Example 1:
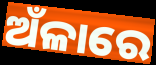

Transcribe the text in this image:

ଅଁଳାରେ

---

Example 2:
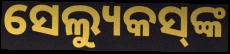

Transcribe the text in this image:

ସେଲ୍ୟୁକସ୍‌ଙ୍କ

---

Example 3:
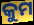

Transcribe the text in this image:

କୁମ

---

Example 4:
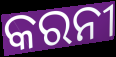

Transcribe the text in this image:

କରନୀ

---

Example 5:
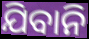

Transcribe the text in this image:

ଯିବାନି